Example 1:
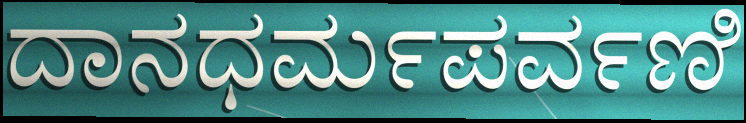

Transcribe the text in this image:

ದಾನಧರ್ಮಪರ್ವಣಿ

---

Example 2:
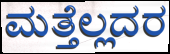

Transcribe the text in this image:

ಮತ್ತೆಲ್ಲದರ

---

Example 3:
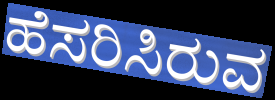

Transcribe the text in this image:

ಹೆಸರಿಸಿರುವ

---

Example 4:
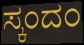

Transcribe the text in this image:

ಸ್ಕಂದಂ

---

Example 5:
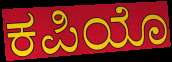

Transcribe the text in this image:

ಕಪಿಯೊ